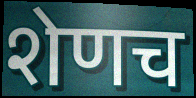
शेणच